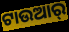
ଟାଉଆର୍